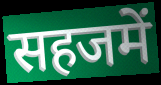
सहजमें